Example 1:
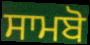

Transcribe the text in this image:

ਸਾਮਬੋ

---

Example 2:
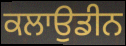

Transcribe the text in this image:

ਕਲਾਉਡੀਨ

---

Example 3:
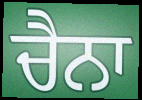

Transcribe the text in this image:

ਚੈਨਾ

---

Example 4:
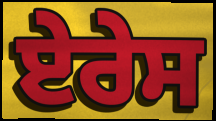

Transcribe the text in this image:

ਏਰੇਸ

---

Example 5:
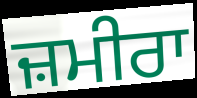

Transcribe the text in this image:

ਜ਼ਮੀਰਾ